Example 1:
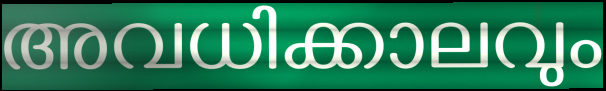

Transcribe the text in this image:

അവധിക്കാലവും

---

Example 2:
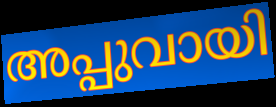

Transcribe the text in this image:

അപ്പുവായി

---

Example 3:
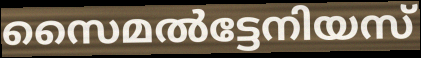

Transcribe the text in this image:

സൈമൽട്ടേനിയസ്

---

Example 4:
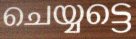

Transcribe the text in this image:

ചെയ്യട്ടെ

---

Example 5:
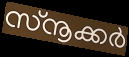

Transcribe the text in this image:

സ്നൂക്കർ